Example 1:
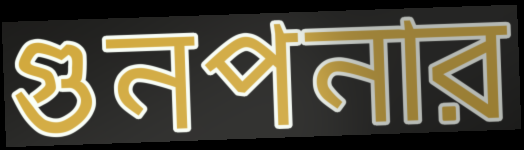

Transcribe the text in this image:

গুনপনার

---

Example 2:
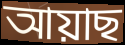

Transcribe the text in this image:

আয়াছ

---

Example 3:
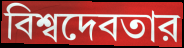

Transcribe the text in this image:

বিশ্বদেবতার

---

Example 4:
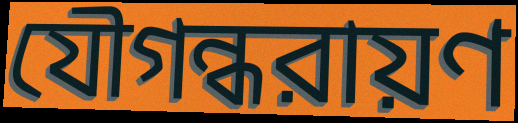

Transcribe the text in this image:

যৌগন্ধরায়ণ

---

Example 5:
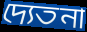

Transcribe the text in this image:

দ্যেতনা